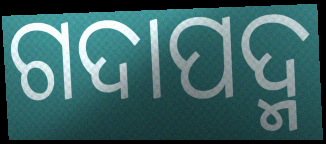
ଗଦାପଦ୍ମ